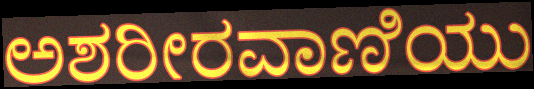
ಅಶರೀರವಾಣಿಯು